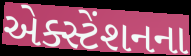
એક્સ્ટેંશનના